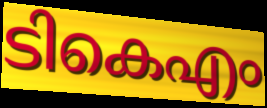
ടികെഎം